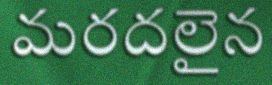
మరదలైన